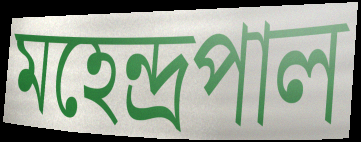
মহেন্দ্রপাল